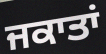
ਜਕਾਤਾਂ